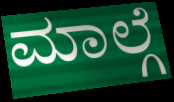
ಮಾಲ್ಗೆ